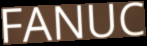
FANUC